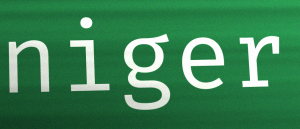
niger